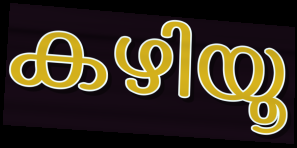
കഴിയൂ